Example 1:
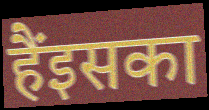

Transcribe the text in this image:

हैंइसका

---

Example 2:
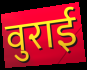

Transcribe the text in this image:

वुराई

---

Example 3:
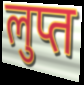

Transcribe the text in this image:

लुप्‍त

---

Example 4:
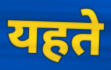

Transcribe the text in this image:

यहते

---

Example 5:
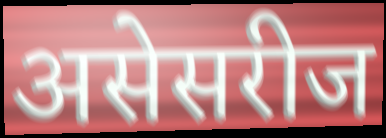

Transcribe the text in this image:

असेसरीज